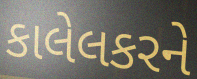
કાલેલકરને